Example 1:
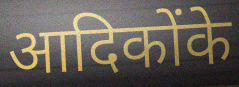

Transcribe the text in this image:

आदिकोंके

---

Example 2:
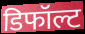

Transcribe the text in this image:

डिफॉल्ट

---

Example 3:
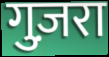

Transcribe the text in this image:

गुज़रा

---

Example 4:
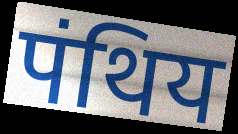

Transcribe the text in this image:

पंथिय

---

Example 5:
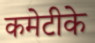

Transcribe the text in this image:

कमेटीके